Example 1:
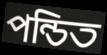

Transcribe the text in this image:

পন্ডিত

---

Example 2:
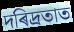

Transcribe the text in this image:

দৰিদ্ৰতাত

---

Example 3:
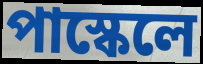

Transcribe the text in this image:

পাস্কেলে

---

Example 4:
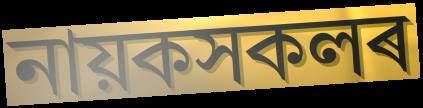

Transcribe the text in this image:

নায়কসকলৰ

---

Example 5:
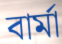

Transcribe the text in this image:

বাৰ্মা